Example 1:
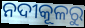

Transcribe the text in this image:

ନଦୀକୂଳରୁ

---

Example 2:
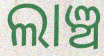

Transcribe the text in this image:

ଲାଞ୍ଚ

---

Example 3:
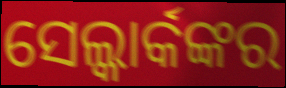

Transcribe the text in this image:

ସେଲ୍କାର୍କଙ୍କର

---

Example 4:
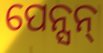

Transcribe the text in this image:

ପେନ୍ସନ୍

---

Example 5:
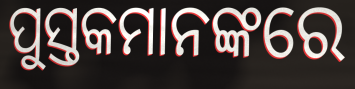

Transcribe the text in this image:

ପୁସ୍ତକମାନଙ୍କରେ